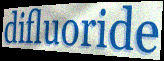
difluoride